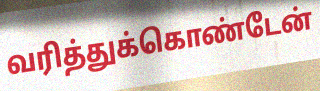
வரித்துக்கொண்டேன்